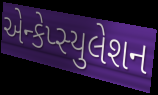
એન્કેપ્સ્યુલેશન